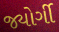
જ્યોર્ગી